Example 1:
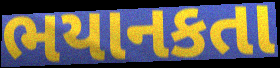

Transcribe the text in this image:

ભયાનકતા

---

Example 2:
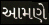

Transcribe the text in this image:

આમણે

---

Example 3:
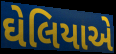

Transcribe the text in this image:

ઘેલિયાએ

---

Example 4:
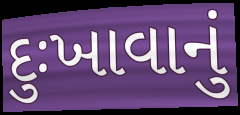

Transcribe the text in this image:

દુઃખાવાનું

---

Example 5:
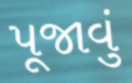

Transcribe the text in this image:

પૂજાવું